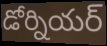
డోర్నియర్